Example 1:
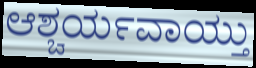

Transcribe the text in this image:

ಆಶ್ಚರ್ಯವಾಯ್ತು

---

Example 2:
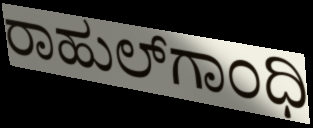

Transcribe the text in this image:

ರಾಹುಲ್‌ಗಾಂಧಿ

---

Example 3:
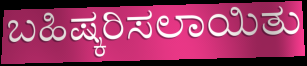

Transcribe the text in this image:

ಬಹಿಷ್ಕರಿಸಲಾಯಿತು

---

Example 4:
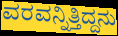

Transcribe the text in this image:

ವರವನ್ನಿತ್ತಿದ್ದನು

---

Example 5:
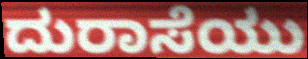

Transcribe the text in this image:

ದುರಾಸೆಯು